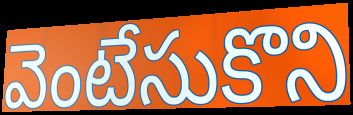
వెంటేసుకొని